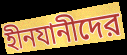
হীনযানীদের